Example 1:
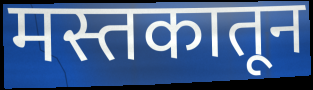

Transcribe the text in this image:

मस्तकातून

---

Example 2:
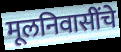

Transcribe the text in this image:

मूलनिवासींचे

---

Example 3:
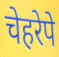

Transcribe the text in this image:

चेहरेपे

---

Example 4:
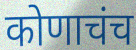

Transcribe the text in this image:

कोणाचंच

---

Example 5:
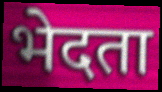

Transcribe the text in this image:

भेदता